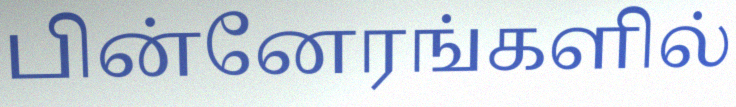
பின்னேரங்களில்